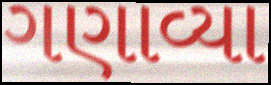
ગણાવ્યા